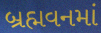
બ્રહ્મવનમાં